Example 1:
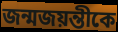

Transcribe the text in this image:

জন্মজয়ন্তীকে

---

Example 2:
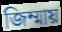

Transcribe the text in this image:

জিম্মায়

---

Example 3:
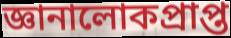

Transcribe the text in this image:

জ্ঞানালোকপ্রাপ্ত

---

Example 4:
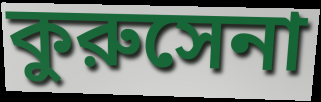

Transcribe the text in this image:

কুরুসেনা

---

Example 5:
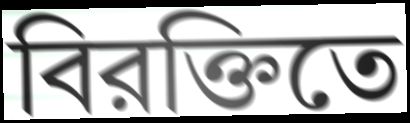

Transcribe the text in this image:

বিরক্তিতে